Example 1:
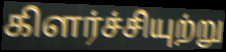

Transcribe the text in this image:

கிளர்ச்சியுற்று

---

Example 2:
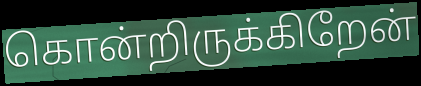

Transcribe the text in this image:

கொன்றிருக்கிறேன்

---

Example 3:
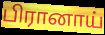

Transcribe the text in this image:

பிரானாய்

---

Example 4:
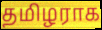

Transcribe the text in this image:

தமிழராக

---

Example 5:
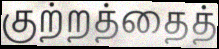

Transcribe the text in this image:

குற்றத்தைத்